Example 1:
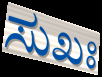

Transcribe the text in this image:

ಸುಖಃ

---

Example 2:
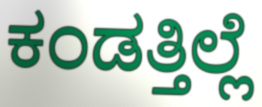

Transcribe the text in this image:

ಕಂಡತ್ತಿಲ್ಲೆ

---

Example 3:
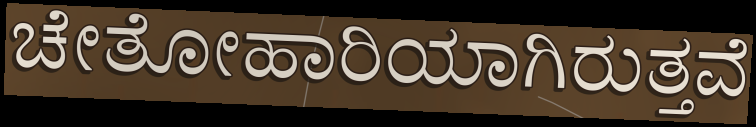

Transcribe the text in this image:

ಚೇತೋಹಾರಿಯಾಗಿರುತ್ತವೆ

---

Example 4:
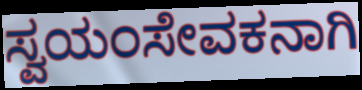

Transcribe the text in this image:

ಸ್ವಯಂಸೇವಕನಾಗಿ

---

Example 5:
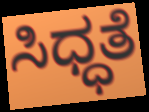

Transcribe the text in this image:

ಸಿಧ್ಧತೆ